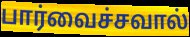
பார்வைச்சவால்